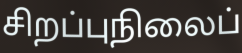
சிறப்புநிலைப்